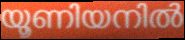
യൂണിയനിൽ